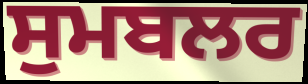
ਸੁਮਬਲਰ